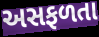
અસફળતા